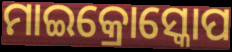
ମାଇକ୍ରୋସ୍କୋପ